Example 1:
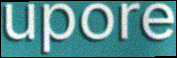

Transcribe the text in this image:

upore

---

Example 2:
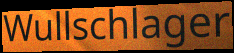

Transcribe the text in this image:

Wullschlager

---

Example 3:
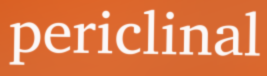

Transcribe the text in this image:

periclinal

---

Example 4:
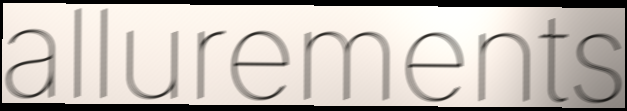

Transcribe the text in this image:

allurements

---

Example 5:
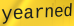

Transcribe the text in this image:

yearned